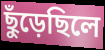
ছুঁড়েছিলে